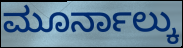
ಮೂರ್ನಾಲ್ಕು